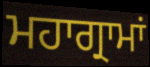
ਮਹਾਗ੍ਰਾਮਾਂ